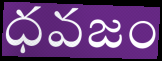
ధవజం